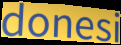
donesi